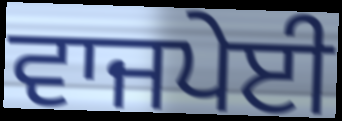
ਵਾਜਪੇਈ